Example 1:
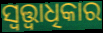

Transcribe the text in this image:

ସ୍ୱତ୍ତ୍ୱାଧିକାର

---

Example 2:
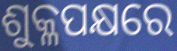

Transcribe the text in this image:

ଶୁକ୍ଳପକ୍ଷରେ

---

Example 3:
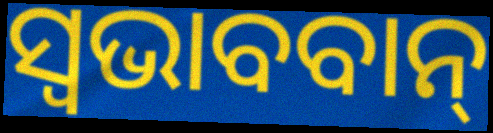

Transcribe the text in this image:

ସ୍ଵଭାବବାନ୍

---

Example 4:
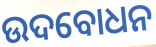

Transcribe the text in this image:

ଉଦବୋଧନ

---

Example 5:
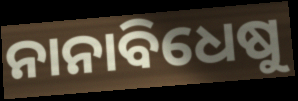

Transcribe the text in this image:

ନାନାବିଧେଷୁ